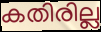
കതിരില്ല